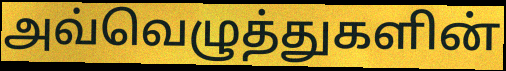
அவ்வெழுத்துகளின்